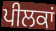
ਪੀਲਕਾਂ